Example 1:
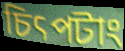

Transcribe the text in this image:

চিৎপটাং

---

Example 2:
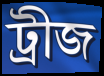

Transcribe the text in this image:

ট্রীজ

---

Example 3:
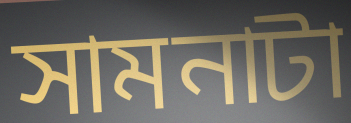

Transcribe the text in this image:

সামনাটা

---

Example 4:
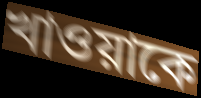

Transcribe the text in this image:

খাওয়াকে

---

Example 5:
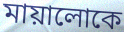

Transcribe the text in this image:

মায়ালোকে